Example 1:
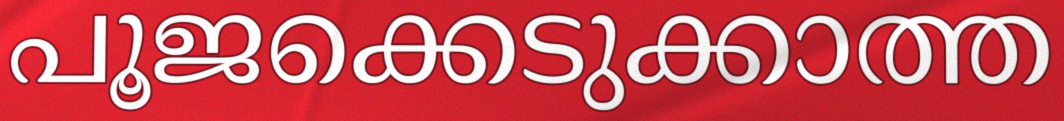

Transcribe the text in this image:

പൂജക്കെടുക്കാത്ത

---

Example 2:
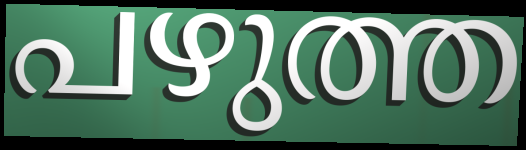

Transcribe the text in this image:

പഴുത്ത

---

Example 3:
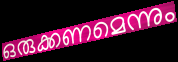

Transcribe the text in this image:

ഒരുക്കണമെന്നും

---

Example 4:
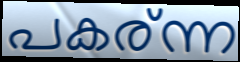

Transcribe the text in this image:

പകര്ന്ന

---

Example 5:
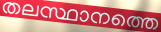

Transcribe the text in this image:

തലസ്ഥാനത്തെ